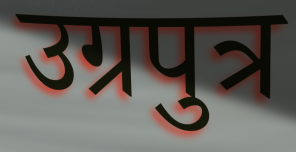
उग्रपुत्र